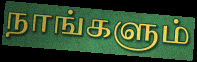
நாங்களும்